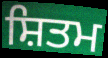
ਸ਼ਿਤਮ